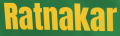
Ratnakar